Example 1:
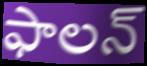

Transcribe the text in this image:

ఫాలన్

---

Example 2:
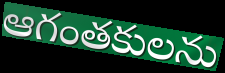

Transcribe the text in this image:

ఆగంతకులను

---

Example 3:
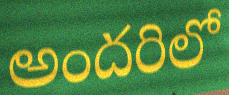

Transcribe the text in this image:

అందరిలో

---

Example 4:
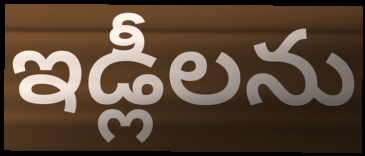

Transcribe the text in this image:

ఇడ్లీలను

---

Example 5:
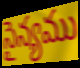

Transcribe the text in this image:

సైన్యము